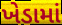
ખેડામાં